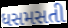
ધસમસતી